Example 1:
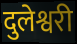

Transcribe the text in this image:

दुलेश्वरी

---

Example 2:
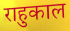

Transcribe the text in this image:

राहुकाल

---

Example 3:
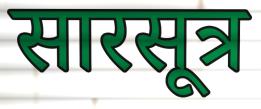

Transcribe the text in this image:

सारसूत्र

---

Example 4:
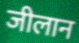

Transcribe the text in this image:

जीलान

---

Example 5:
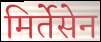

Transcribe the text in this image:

मिर्तेसेन